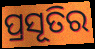
ପ୍ରସୂତିର